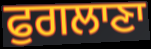
ਫੁਗਲਾਣਾ